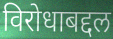
विरोधाबद्दल